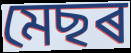
মেছৰ